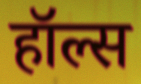
हॉल्स